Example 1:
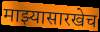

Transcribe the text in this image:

माझ्यासारखेच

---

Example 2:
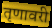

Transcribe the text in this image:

तृणावरी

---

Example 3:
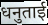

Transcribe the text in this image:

धनुताई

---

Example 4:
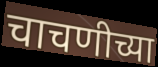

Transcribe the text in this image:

चाचणीच्या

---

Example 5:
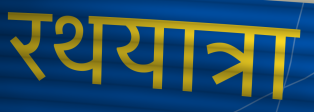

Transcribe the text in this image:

रथयात्रा